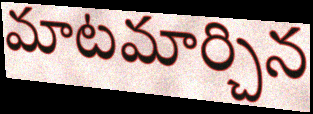
మాటమార్చిన